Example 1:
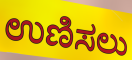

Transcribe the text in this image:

ಉಣಿಸಲು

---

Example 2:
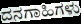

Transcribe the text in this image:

ದನಗಾಹಿಗಳು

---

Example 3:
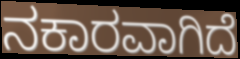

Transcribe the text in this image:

ನಕಾರವಾಗಿದೆ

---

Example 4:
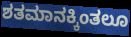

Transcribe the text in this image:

ಶತಮಾನಕ್ಕಿಂತಲೂ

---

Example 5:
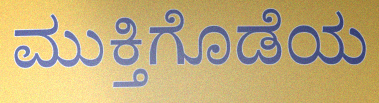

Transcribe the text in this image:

ಮುಕ್ತಿಗೊಡೆಯ